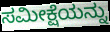
ಸಮೀಕ್ಷೆಯನ್ನು